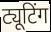
ट्यूटिंग